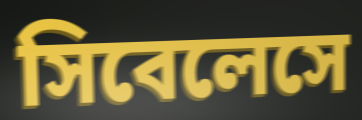
সিবেলেসে